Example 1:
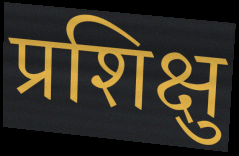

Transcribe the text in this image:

प्रशिक्षु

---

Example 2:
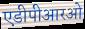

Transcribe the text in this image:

एडीपीआरओ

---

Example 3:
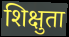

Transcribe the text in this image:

शिक्षुता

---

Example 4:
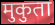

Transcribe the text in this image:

मुकुता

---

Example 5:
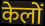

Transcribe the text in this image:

केलों